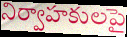
నిర్వాహకులపై